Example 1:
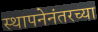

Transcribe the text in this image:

स्थापनेनंतरच्या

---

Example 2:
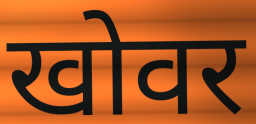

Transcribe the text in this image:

खोवर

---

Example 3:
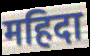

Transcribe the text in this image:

महिदा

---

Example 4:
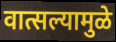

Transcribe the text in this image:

वात्सल्यामुळे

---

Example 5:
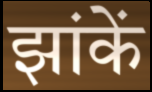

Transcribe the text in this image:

झांकें